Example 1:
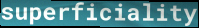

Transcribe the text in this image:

superficiality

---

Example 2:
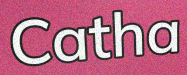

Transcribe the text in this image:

Catha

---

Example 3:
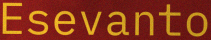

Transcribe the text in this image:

Esevanto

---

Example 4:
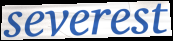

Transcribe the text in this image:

severest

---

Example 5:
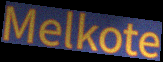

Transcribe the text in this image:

Melkote